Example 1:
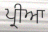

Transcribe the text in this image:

ਪ੍ਰੀਆ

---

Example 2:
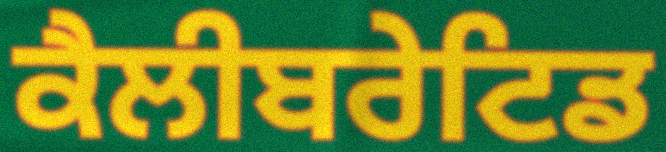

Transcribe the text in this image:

ਕੈਲੀਬਰੇਟਿਡ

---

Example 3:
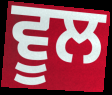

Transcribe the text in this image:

ਵੂਲ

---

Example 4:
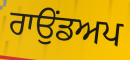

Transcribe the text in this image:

ਰਾਉਂਡਅਪ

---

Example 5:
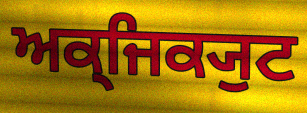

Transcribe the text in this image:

ਅਕ੍ਜਿਕ੍ਯੁਟ